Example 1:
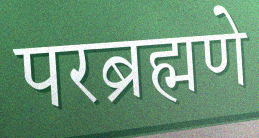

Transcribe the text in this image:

परब्रह्मणे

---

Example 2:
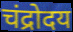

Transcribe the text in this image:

चंद्रोदय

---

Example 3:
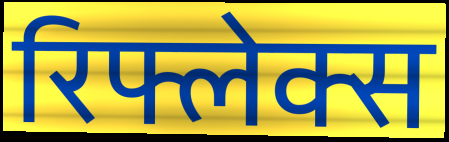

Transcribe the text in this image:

रिफ्लेक्स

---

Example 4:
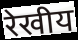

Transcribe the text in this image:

रेखीय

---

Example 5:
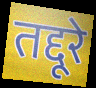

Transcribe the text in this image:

तद्दूरे